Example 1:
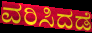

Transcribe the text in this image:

ವರಿಸಿದಡೆ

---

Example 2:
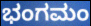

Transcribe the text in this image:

ಭಂಗಮಂ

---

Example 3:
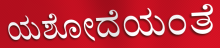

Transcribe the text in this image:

ಯಶೋದೆಯಂತೆ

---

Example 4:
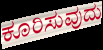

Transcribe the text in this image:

ಕೂರಿಸುವುದು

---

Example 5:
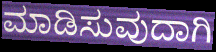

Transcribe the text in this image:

ಮಾಡಿಸುವುದಾಗಿ